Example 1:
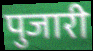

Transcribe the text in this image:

पुजारी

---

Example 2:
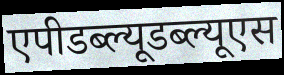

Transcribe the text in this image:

एपीडब्ल्यूडब्ल्यूएस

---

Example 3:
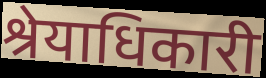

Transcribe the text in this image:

श्रेयाधिकारी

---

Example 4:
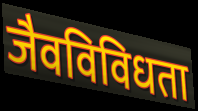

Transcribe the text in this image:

जैवविविधता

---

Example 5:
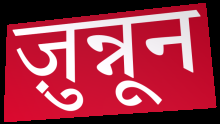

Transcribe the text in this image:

ज़ुन्नून